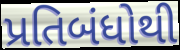
પ્રતિબંધોથી